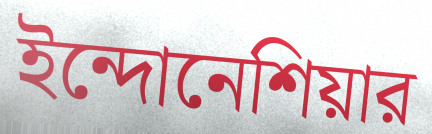
ইন্দোনেশিয়ার